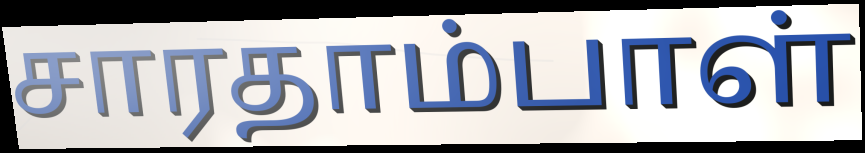
சாரதாம்பாள்